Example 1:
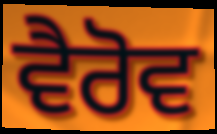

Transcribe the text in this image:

ਵੈਰੋਵ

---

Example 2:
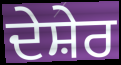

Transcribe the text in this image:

ਦੇਸ਼ੇਰ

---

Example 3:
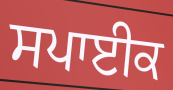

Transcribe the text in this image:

ਸਪਾਈਕ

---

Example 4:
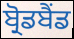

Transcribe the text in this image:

ਬ੍ਰੋਡਬੈਂਡ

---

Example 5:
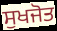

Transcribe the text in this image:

ਸੁਖਜੋਤ